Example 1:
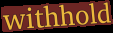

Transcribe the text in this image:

withhold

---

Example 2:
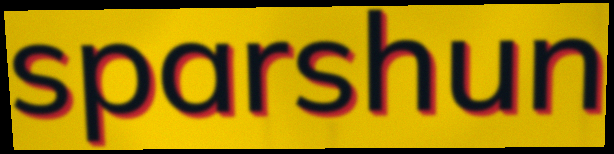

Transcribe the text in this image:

sparshun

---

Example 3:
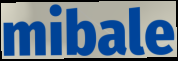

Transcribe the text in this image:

mibale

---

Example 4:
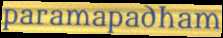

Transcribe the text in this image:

paramapadham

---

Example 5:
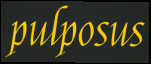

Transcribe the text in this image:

pulposus